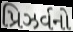
પ્રિઝર્વનો